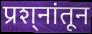
प्रश्नांतून